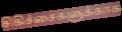
சிகிச்சைகளுக்காக